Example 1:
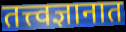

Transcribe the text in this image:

तत्त्वज्ञानात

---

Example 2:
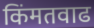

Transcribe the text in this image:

किंमतवाढ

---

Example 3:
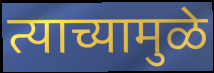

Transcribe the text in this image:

त्याच्यामुळे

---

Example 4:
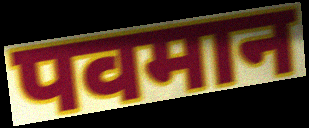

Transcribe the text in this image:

पवमान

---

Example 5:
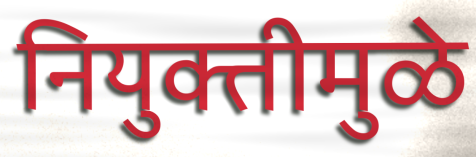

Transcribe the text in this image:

नियुक्तीमुळे